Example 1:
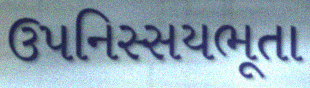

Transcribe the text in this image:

ઉપનિસ્સયભૂતા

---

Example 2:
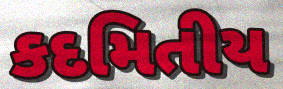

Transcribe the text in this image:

કદમિતીય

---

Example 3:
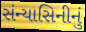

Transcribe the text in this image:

સંન્યાસિનીનું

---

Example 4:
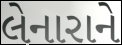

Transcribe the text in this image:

લેનારાને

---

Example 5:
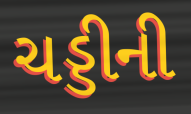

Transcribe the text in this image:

ચડ્ડીની